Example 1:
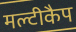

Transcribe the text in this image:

मल्टीकैप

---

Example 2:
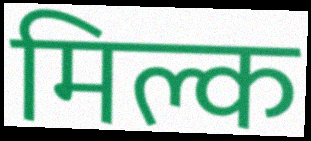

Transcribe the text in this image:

मिल्क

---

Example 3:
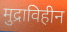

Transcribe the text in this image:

मुद्राविहीन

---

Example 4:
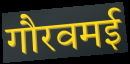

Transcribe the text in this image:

गौरवमई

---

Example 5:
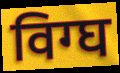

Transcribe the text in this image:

विग्घ